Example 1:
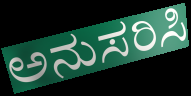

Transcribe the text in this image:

ಅನುಸರಿಸಿ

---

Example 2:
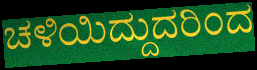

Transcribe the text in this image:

ಚಳಿಯಿದ್ದುದರಿಂದ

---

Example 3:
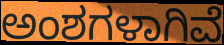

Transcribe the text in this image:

ಅಂಶಗಳಾಗಿವೆ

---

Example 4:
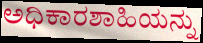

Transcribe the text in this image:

ಅಧಿಕಾರಶಾಹಿಯನ್ನು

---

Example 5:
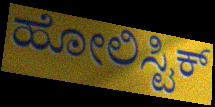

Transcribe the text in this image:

ಹೋಲಿಸ್ಟಿಕ್